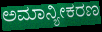
ಅಮಾನ್ಯೀಕರಣ